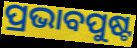
ପ୍ରଭାବପୁଷ୍ଟ